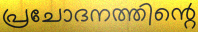
പ്രചോദനത്തിന്റെ